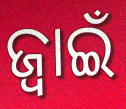
ଜ୍ବାଇଁ